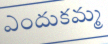
ఎందుకమ్మ